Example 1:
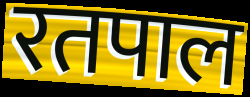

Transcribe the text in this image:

रतपाल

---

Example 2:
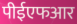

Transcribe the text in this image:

पीईएफआर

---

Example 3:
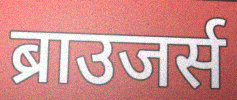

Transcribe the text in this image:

ब्राउजर्स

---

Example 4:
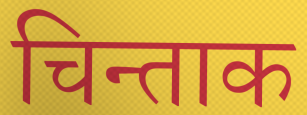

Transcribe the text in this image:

चिन्ताक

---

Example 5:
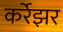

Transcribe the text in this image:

कर्रेझर